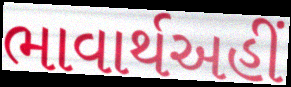
ભાવાર્થઅહીં